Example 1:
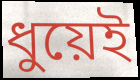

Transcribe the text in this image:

ধুয়েই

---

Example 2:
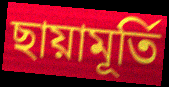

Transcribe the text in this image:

ছায়ামূর্তি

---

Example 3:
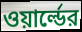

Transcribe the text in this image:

ওয়ার্ল্ডের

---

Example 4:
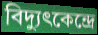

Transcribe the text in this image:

বিদ্যুৎকেন্দ্রে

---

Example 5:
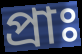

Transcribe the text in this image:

প্রাঃ